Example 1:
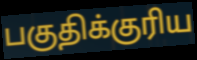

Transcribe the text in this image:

பகுதிக்குரிய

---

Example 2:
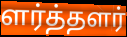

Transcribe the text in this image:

ளர்த்தளர்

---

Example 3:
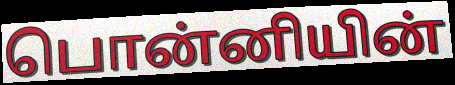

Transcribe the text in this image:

பொன்னியின்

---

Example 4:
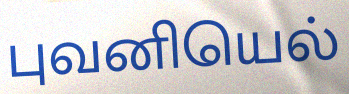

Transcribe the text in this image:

புவனியெல்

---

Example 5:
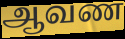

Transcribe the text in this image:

ஆவண